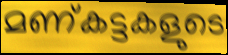
മണ്കട്ടകളുടെ